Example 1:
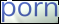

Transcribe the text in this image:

porn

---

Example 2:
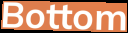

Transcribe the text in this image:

Bottom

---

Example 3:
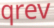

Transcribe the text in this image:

qrev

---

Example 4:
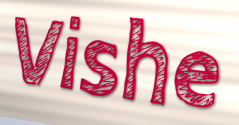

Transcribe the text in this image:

Vishe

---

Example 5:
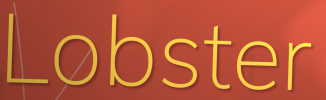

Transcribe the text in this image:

Lobster